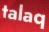
talaq